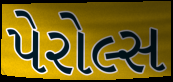
પેરોલ્સ